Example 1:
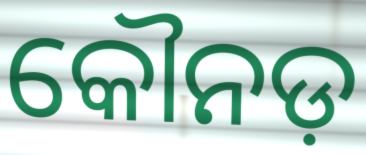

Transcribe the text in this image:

କୌନଡ଼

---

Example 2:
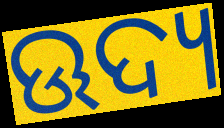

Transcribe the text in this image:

ଊଦ୍ୟ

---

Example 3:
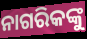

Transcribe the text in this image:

ନାଗରିକଙ୍କୁ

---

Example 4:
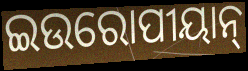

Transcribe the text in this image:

ଇଉରୋପୀୟାନ୍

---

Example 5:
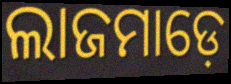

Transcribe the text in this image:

ଲାଜମାଡ଼େ